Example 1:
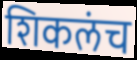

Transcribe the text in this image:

शिकलंच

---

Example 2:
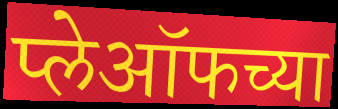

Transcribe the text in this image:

प्लेऑफच्या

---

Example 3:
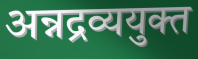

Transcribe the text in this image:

अन्नद्रव्ययुक्त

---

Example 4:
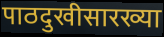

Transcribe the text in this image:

पाठदुखीसारख्या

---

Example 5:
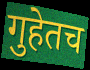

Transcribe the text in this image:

गुहेतच